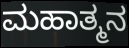
ಮಹಾತ್ಮನ